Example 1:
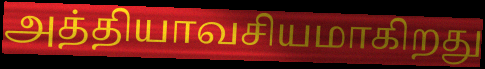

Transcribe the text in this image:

அத்தியாவசியமாகிறது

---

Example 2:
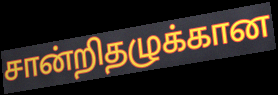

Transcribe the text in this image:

சான்றிதழுக்கான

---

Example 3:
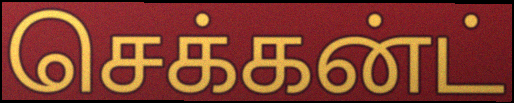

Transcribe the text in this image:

செக்கன்ட்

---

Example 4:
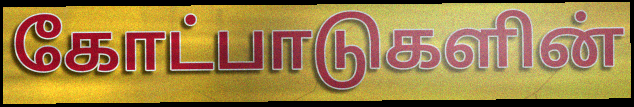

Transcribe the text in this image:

கோட்பாடுகளின்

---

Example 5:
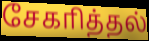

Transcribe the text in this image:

சேகரித்தல்